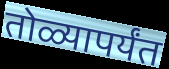
तोळ्यापर्यंत